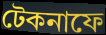
টেকনাফে